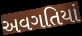
અવગતિયાં